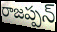
రాజప్పన్